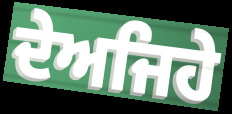
ਦੇਅਜਿਹੇ